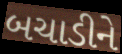
બચાડીને